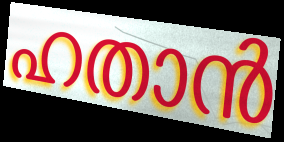
ഹതാൻ